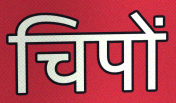
चिपों